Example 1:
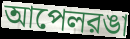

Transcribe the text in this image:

আপেলরঙা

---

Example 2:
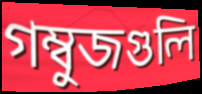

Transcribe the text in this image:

গম্বুজগুলি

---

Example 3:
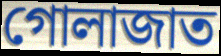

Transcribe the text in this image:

গোলাজাত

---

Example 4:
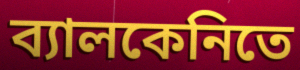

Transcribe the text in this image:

ব্যালকেনিতে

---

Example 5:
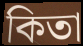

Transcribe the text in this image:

কিতা